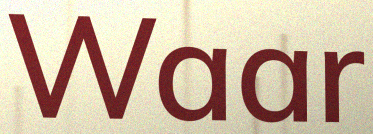
Waar